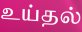
உய்தல்